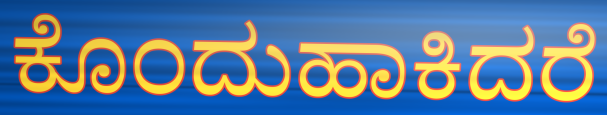
ಕೊಂದುಹಾಕಿದರೆ